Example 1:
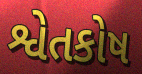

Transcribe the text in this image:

શ્વેતકોષ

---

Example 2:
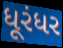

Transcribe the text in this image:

ધૂરંધર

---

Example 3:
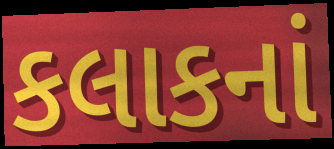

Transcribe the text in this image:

કલાકનાં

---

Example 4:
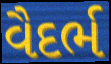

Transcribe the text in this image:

વૈદર્ભ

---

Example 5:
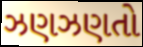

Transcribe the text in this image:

ઝણઝણતો